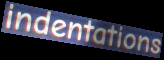
indentations